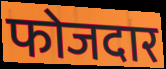
फोजदार